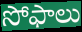
సోఫాలు